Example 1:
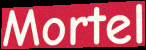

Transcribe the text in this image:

Mortel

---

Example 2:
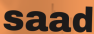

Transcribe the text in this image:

saad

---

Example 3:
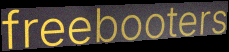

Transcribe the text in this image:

freebooters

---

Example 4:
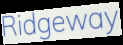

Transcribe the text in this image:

Ridgeway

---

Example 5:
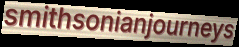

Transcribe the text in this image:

smithsonianjourneys